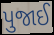
પુજાઈ